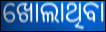
ଖୋଲାଥିବା